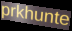
prkhunte